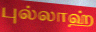
புல்லாஹ்